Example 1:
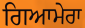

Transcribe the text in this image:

ਗਿਆਮੇਰਾ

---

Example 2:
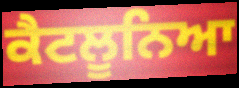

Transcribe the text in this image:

ਕੈਟਲੂਨਿਆ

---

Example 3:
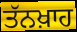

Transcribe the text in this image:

ਤੱਨਖ਼ਾਹ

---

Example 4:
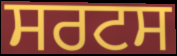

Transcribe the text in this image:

ਸਰਟਸ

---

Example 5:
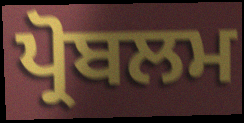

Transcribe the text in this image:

ਪ੍ਰੋਬਲਮ